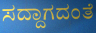
ಸದ್ದಾಗದಂತೆ